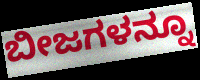
ಬೀಜಗಳನ್ನೂ